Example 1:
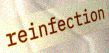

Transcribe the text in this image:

reinfection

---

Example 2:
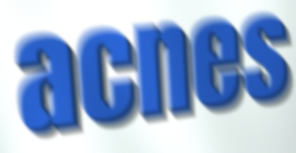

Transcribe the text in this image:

acnes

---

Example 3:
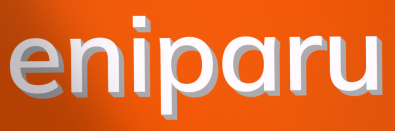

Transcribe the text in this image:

eniparu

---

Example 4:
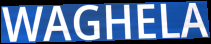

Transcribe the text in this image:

WAGHELA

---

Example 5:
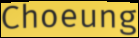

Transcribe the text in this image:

Choeung